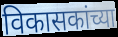
विकासकांच्या